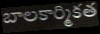
బాలకార్మికత